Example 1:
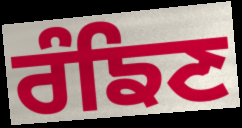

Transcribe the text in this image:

ਰੰਙਿਣ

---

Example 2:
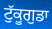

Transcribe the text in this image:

ਟੁੱਕੂਗੁਡਾ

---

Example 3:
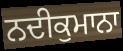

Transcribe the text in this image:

ਨਦੀਕੁਮਾਨਾ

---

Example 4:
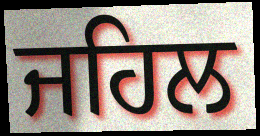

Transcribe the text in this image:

ਜਹਿਲ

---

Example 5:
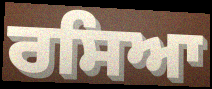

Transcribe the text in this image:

ਰਸਿਆ